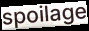
spoilage